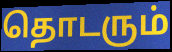
தொடரும்